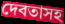
দেবতাসহ